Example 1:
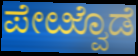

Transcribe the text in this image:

ಪೇೞ್ವೊಡೆ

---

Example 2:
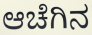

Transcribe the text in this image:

ಆಚೆಗಿನ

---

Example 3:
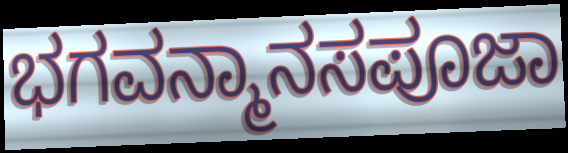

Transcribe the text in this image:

ಭಗವನ್ಮಾನಸಪೂಜಾ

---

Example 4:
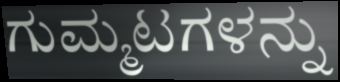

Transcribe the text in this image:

ಗುಮ್ಮಟಗಳನ್ನು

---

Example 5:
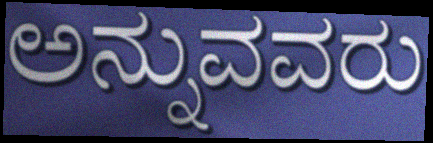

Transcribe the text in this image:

ಅನ್ನುವವರು